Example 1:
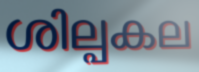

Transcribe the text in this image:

ശില്പകല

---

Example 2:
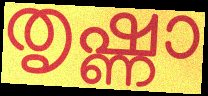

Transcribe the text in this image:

തൃഷ്ണാ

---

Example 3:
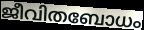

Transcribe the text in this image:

ജീവിതബോധം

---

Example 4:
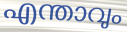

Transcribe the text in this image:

എന്താവും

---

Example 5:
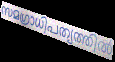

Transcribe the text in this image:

സമഗ്രാധിപത്യത്തിൽ